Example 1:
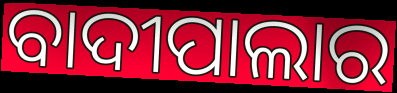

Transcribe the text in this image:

ବାଦୀପାଲାର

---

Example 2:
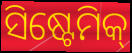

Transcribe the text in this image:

ସିଷ୍ଟେମିକ୍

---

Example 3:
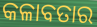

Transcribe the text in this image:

କଳାବତାର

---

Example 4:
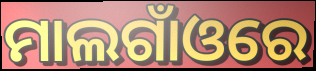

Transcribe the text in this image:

ମାଲଗାଁଓରେ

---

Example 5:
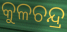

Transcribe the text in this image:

କୁଳଚନ୍ଦ୍ର